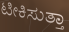
ಟೀಕಿಸುತ್ತಾ